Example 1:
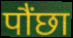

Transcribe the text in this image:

पौंछा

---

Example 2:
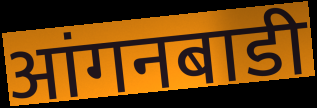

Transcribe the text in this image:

आंगनबाडी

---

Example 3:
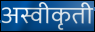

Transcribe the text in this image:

अस्वीकृती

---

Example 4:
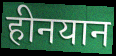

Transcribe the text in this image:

हीनयान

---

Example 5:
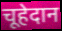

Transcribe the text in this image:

चूहेदान